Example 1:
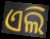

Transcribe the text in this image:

ଏଲି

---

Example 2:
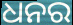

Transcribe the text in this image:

ଧନର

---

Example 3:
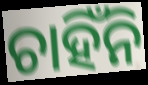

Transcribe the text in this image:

ଚାହିଁନି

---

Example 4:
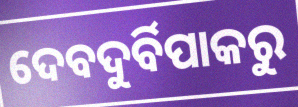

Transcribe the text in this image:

ଦେବଦୁର୍ବିପାକରୁ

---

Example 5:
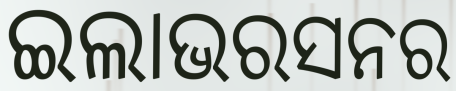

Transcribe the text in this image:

ଇଲାଭରସନର